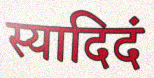
स्यादिदं